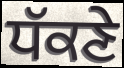
ਧੱਕਣੇ